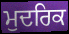
ਮੁਦਰਿਕ